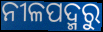
ନୀଳପଦ୍ମରୁ